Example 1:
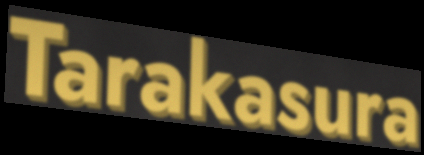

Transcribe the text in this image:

Tarakasura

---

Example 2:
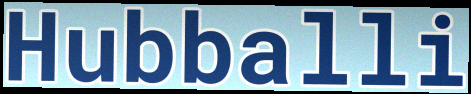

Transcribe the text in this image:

Hubballi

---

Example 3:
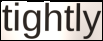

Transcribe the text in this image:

tightly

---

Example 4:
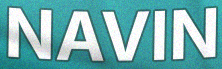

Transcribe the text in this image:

NAVIN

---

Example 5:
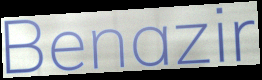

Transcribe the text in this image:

Benazir